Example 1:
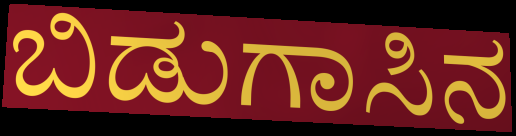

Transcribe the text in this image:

ಬಿಡುಗಾಸಿನ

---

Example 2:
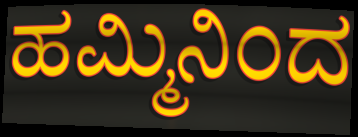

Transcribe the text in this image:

ಹಮ್ಮಿನಿಂದ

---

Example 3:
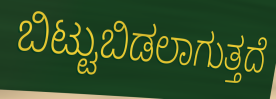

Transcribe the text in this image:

ಬಿಟ್ಟುಬಿಡಲಾಗುತ್ತದೆ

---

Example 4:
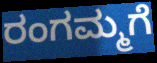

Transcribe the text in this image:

ರಂಗಮ್ಮಗೆ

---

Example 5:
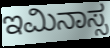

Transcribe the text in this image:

ಇಮಿನಾಸ್ಸ